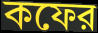
কফের